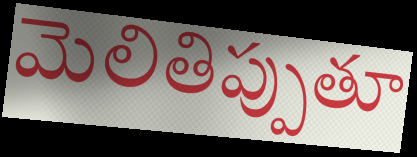
మెలితిప్పుతూ